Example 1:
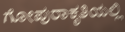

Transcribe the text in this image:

ಗೋಪುರಾಕೃತಿಯಲ್ಲಿ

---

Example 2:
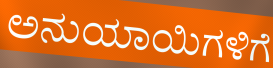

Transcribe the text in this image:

ಅನುಯಾಯಿಗಳಿಗೆ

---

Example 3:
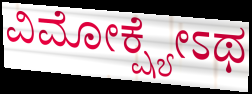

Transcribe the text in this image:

ವಿಮೋಕ್ಷ್ಯೇಽಥ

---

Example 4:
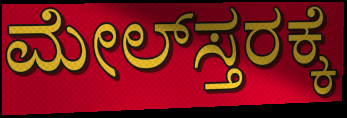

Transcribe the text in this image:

ಮೇಲ್‌ಸ್ತರಕ್ಕೆ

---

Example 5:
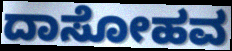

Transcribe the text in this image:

ದಾಸೋಹವ